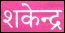
शकेन्द्र